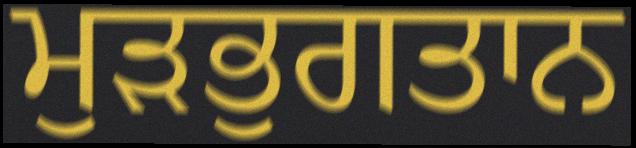
ਮੁੜਭੁਗਤਾਨ